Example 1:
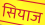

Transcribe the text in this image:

सियाज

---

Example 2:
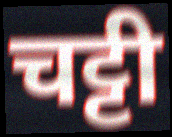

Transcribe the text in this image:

चट्टी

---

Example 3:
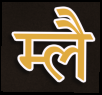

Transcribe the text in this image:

म्लै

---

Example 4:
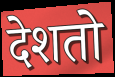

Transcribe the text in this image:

देशतो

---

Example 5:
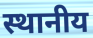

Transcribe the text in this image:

स्थानीय